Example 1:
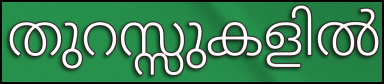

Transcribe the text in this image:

തുറസ്സുകളിൽ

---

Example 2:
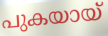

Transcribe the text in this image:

പുകയായ്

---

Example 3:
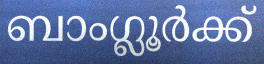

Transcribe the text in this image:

ബാംഗ്ലൂർക്ക്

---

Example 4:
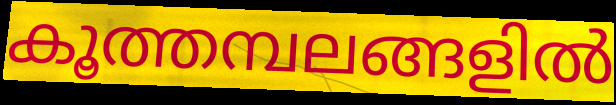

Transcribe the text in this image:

കൂത്തമ്പലങ്ങളിൽ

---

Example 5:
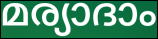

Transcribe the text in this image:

മര്യാദാം